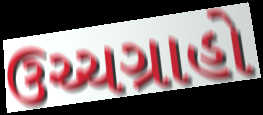
ઉચ્ચગ્રાહો